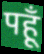
पहूँ